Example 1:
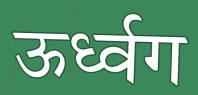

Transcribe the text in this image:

ऊर्ध्वग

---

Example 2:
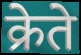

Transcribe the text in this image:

क्रेते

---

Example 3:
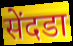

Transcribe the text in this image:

सेंदडा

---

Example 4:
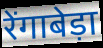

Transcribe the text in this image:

रेंगाबेड़ा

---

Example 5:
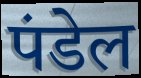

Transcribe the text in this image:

पंडेल